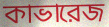
কাভারেজ